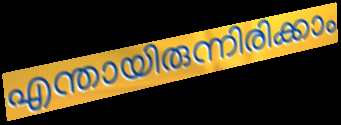
എന്തായിരുന്നിരിക്കാം